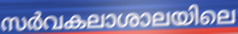
സർവകലാശാലയിലെ